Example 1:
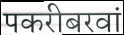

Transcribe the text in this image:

पकरीबरवां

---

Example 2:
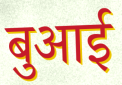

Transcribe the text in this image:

बुआई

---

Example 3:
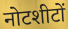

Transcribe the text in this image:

नोटशीटों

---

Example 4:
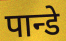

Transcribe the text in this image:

पान्डे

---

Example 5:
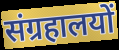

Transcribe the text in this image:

संग्रहालयों